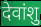
देवांशु